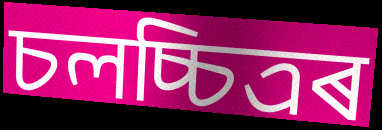
চলচ্চিত্ৰৰ